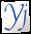
Yj